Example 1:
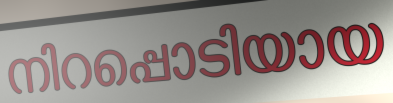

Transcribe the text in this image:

നിറപ്പൊടിയായ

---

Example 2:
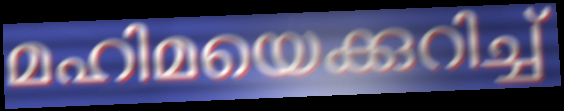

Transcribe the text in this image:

മഹിമയെക്കുറിച്ച്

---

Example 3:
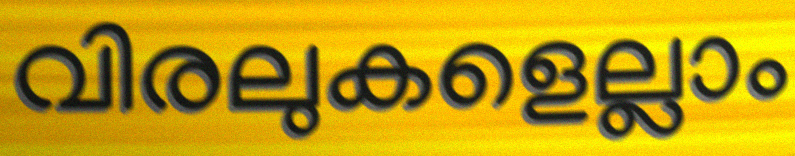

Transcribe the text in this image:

വിരലുകളെല്ലാം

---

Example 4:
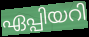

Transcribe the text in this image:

ഏപ്പിയറി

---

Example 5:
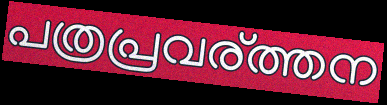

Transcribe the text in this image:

പത്രപ്രവര്ത്തന